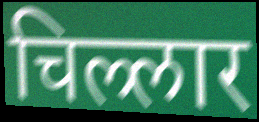
चिल्लार